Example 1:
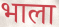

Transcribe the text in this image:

भाला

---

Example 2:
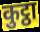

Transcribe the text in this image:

कुट्ठा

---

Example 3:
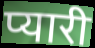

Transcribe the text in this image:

प्यारी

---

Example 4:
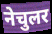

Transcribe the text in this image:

नेचुलर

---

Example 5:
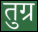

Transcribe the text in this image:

तुग्र